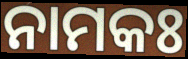
ନାମକଃ